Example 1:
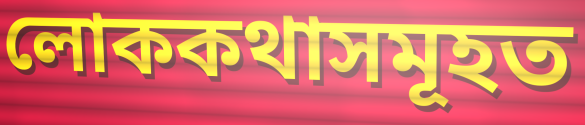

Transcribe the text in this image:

লোককথাসমূহত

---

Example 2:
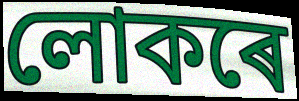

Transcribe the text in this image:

লোকৰে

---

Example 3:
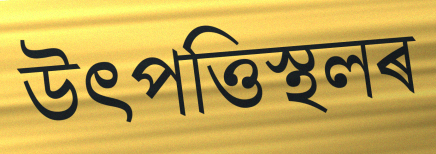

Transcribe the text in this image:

উৎপত্তিস্থলৰ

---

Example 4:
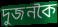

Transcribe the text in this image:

দুজনকৈ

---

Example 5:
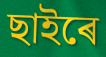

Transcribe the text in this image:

ছাইৰে